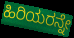
ಹಿರಿಯರನ್ನೇ